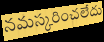
నమస్కరించలేదు